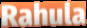
Rahula